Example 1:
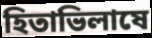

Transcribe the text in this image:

হিতাভিলাষে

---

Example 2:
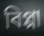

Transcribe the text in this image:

বিপ্পা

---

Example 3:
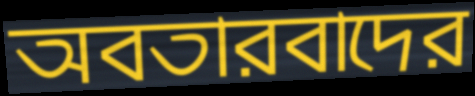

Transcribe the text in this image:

অবতারবাদের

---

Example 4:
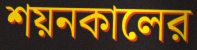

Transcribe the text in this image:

শয়নকালের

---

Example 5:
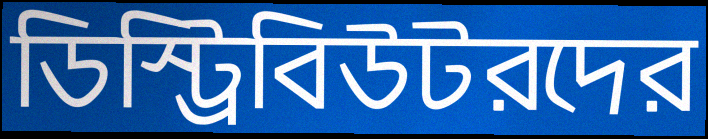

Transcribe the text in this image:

ডিস্ট্রিবিউটরদের